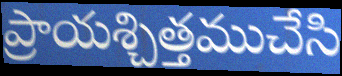
ప్రాయశ్చిత్తముచేసి